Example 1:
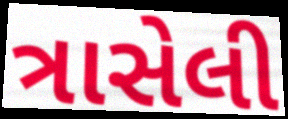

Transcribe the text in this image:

ત્રાસેલી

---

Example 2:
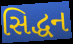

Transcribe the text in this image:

સિદ્ધન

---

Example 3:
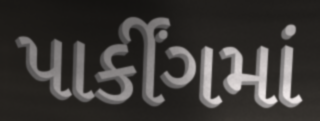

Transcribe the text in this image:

પાર્કીંગમાં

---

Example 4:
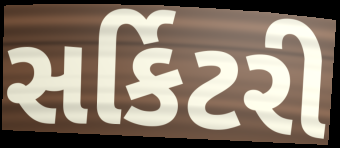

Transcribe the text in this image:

સર્કિટરી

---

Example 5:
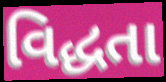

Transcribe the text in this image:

વિદ્ધતા